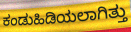
ಕಂಡುಹಿಡಿಯಲಾಗಿತ್ತು